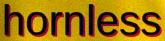
hornless